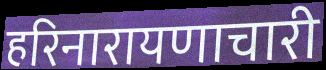
हरिनारायणाचारी